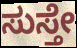
ಸುಸ್ತೇ